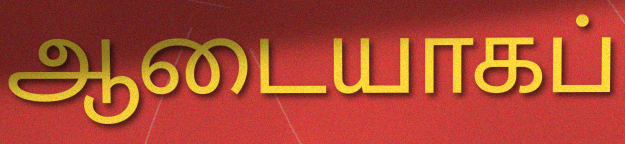
ஆடையாகப்